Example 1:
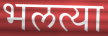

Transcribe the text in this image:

भलत्या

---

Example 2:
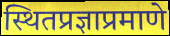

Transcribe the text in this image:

स्थितप्रज्ञाप्रमाणे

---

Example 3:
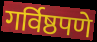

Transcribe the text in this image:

गर्विष्ठपणे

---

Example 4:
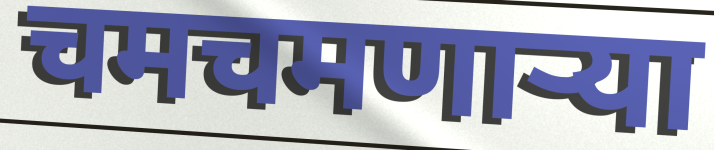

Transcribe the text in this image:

चमचमणार्‍या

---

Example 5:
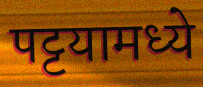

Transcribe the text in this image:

पट्टयामध्ये